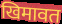
खिमावत